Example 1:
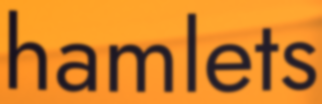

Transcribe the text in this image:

hamlets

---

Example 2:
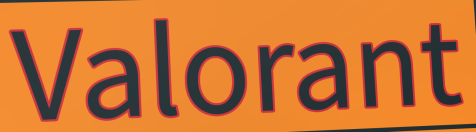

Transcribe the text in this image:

Valorant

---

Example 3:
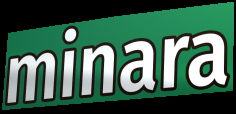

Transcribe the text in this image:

minara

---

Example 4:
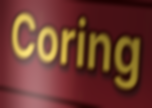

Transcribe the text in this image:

Coring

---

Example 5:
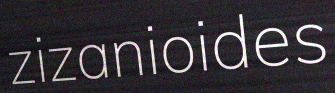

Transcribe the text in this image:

zizanioides